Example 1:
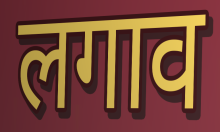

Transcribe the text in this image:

लगाव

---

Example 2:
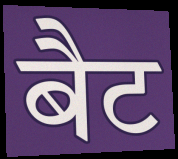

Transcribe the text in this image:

बैट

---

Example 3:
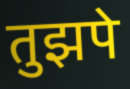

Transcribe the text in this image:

तुझपे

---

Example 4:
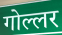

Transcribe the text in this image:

गोल्लर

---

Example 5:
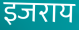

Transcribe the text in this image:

इजराय